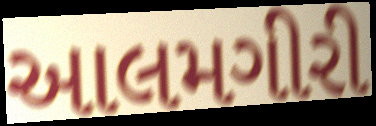
આલમગીરી